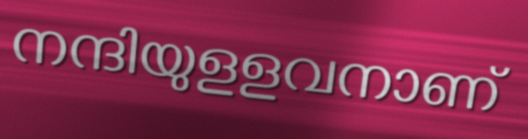
നന്ദിയുളളവനാണ്